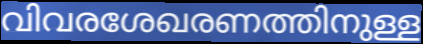
വിവരശേഖരണത്തിനുള്ള